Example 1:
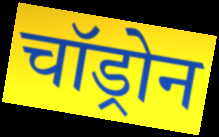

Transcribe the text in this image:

चॉड्रोन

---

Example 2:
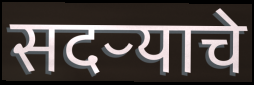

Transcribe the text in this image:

सदऱ्याचे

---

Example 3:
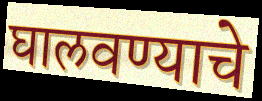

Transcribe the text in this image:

घालवण्याचे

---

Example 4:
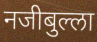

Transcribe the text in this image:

नजीबुल्ला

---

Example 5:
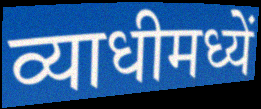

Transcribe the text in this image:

व्याधीमध्यें